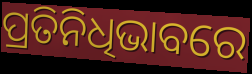
ପ୍ରତିନିଧିଭାବରେ